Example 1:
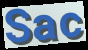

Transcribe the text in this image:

Sac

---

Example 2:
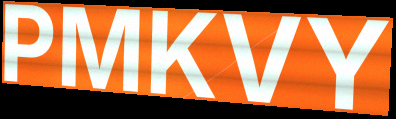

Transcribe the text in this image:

PMKVY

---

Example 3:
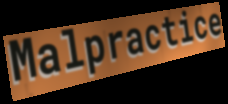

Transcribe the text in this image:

Malpractice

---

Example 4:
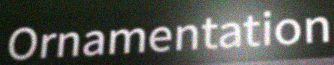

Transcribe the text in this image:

Ornamentation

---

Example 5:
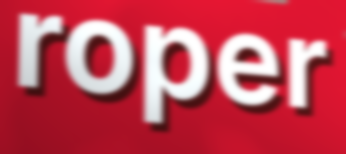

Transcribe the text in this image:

roper